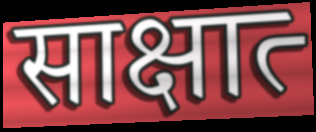
साक्षात्‍